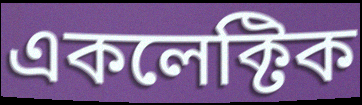
একলেক্টিক